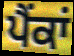
ਪੈਂਕਾਂ